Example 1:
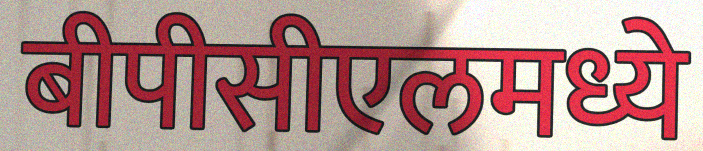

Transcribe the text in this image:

बीपीसीएलमध्ये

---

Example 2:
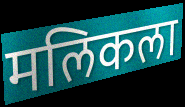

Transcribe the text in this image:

मलिकला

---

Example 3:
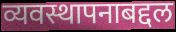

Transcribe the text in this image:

व्यवस्थापनाबद्दल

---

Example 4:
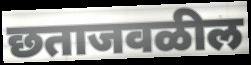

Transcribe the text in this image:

छताजवळील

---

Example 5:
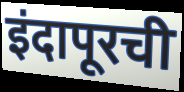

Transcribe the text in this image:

इंदापूरची